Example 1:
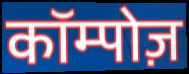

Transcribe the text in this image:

कॉम्पोज़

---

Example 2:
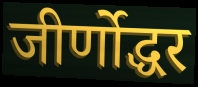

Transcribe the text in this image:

जीर्णोद्धर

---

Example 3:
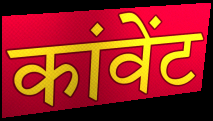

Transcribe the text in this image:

कांवेंट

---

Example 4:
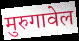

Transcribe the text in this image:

मुरुगावेल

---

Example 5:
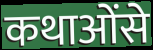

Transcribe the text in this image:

कथाओंसे